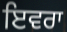
ਇਵਰਾ